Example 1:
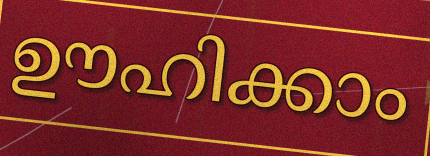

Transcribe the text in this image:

ഊഹിക്കാം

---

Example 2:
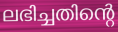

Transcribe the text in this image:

ലഭിച്ചതിന്റെ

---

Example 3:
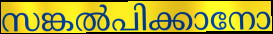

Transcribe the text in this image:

സങ്കൽപിക്കാനോ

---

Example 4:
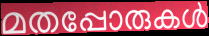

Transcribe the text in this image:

മതപ്പോരുകൾ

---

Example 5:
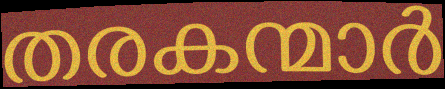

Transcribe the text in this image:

തരകന്മാർ